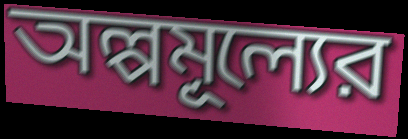
অল্পমূল্যের